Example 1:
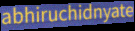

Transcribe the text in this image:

abhiruchidnyate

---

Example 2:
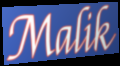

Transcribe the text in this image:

Malik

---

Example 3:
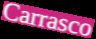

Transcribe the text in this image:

Carrasco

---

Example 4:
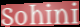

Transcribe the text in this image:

Sohini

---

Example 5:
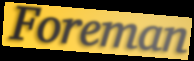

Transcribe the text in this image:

Foreman